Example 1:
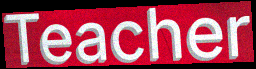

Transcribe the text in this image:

Teacher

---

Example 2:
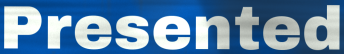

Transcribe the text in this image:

Presented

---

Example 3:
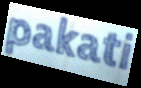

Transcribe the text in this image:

pakati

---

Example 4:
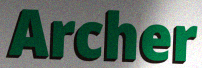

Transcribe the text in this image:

Archer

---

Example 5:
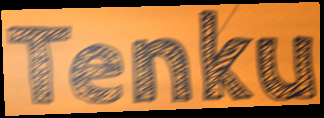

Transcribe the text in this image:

Tenku